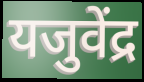
यजुवेंद्र